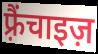
फ़्रैंचाइज़